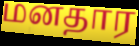
மனதார